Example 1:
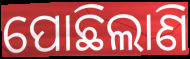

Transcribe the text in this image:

ପୋଛିଲାଣି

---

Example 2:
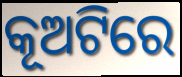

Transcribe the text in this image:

କୂଅଟିରେ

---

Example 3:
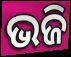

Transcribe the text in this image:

ଭଜି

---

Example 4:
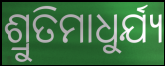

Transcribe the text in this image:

ଶ୍ରୁତିମାଧୁର୍ଯ୍ୟ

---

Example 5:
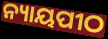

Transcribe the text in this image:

ନ୍ୟାୟପୀଠ